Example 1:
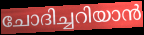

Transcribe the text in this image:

ചോദിച്ചറിയാൻ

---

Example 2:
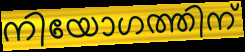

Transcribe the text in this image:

നിയോഗത്തിന്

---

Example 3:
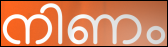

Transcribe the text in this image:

നിണം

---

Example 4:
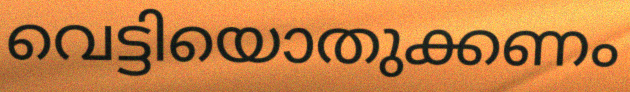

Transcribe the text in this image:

വെട്ടിയൊതുക്കണം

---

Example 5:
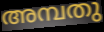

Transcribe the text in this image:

അമ്പതു